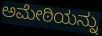
ಅಮೇಠಿಯನ್ನು